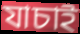
যাচাই